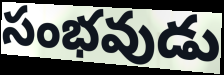
సంభవుడు